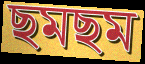
ছমছম